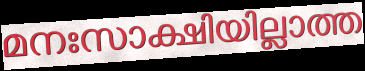
മനഃസാക്ഷിയില്ലാത്ത